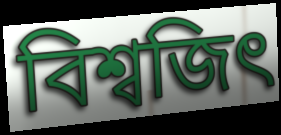
বিশ্বজিৎ